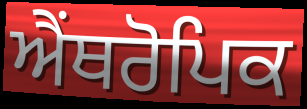
ਐਂਥਰੋਪਿਕ